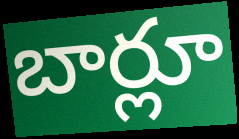
బార్లూ